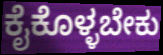
ಕೈಕೊಳ್ಳಬೇಕು